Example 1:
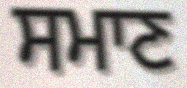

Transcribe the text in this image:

ਸਮਾਣ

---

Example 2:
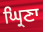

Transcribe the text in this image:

ਘ੍ਰਿਣਾ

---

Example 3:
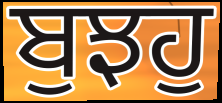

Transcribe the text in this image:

ਬੁਝਹੁ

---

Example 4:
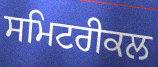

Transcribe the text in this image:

ਸਮਿਟਰੀਕਲ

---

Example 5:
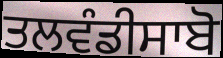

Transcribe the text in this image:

ਤਲਵੰਡੀਸਾਬੋ